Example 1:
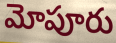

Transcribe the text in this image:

మోపూరు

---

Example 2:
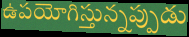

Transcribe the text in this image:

ఉపయోగిస్తున్నప్పుడు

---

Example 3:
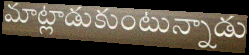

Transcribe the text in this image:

మాట్లాడుకుంటున్నాడు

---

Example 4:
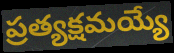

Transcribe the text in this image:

ప్రత్యక్షమయ్యే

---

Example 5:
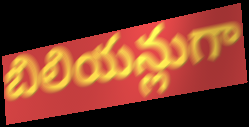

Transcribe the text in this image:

బిలియన్లుగా